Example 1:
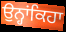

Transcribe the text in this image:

ਉਨ੍ਹਾਂਕਿਹਾ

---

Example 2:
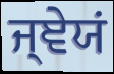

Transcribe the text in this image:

ਜ੍ਞੇਯਂ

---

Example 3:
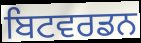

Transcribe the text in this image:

ਬਿਟਵਰਡਨ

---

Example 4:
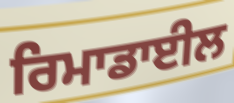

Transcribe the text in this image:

ਰਿਮਾਡਾਈਲ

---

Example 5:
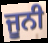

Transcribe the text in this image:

ਜੂਨੀ